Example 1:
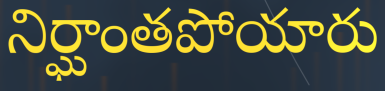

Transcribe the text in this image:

నిర్ఘాంతపోయారు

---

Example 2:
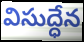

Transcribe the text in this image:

విసుద్ధేన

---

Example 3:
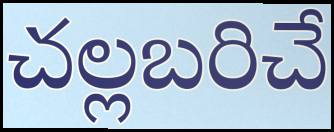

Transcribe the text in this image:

చల్లబరిచే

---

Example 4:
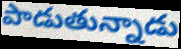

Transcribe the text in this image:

పాడుతున్నాడు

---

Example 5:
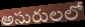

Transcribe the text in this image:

అసురులలో